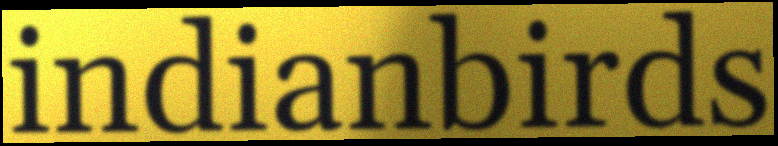
indianbirds